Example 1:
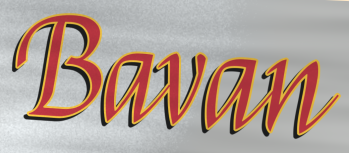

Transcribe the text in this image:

Bavan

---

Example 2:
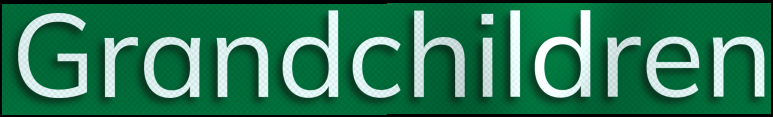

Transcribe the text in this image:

Grandchildren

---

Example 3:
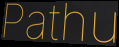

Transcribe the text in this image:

Pathu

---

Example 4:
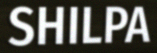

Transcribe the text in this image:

SHILPA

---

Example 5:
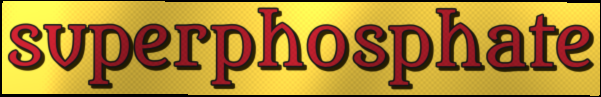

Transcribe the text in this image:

superphosphate